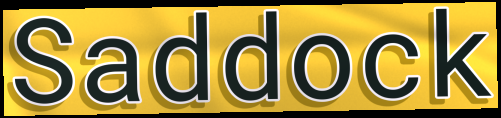
Saddock